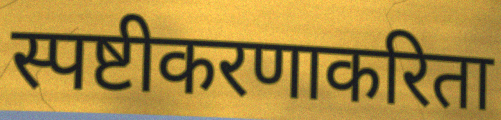
स्पष्टीकरणाकरिता